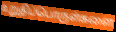
உறுதிப்பொருள்களை